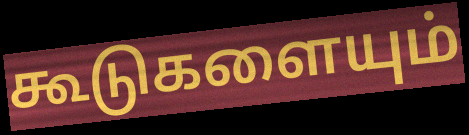
கூடுகளையும்